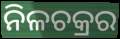
ନିଳଚକ୍ରର